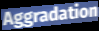
Aggradation